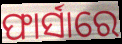
ଫାର୍ସାରେ